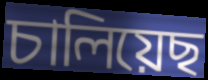
চালিয়েছ